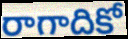
రాగాదికో